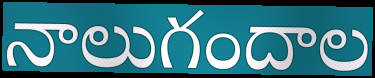
నాలుగందాల